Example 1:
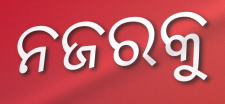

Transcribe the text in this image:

ନଜରକୁ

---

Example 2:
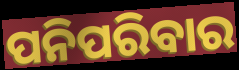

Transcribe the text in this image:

ପନିପରିବାର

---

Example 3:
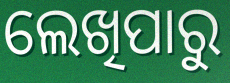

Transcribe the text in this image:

ଲେଖିପାରୁ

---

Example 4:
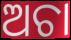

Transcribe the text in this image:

ଅଚା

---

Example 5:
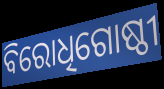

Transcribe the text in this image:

ବିରୋଧିଗୋଷ୍ଠୀ